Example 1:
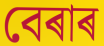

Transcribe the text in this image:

বেৰাৰ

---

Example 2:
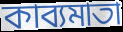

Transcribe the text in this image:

কাব্যমাতা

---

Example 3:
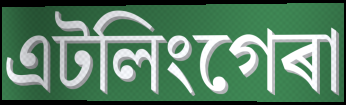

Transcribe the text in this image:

এটলিংগেৰা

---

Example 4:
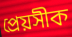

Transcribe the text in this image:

প্ৰেয়সীক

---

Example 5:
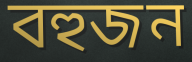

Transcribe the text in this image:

বহুজন